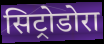
सिट्रोडोरा